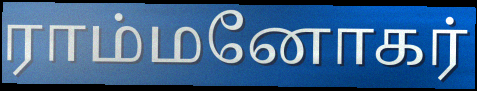
ராம்மனோகர்